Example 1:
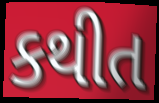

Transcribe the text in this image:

કથીત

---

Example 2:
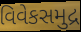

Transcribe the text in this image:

વિવેકસમુદ્ર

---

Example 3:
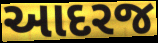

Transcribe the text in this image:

આદરજ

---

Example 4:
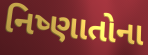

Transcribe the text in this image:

નિષ્ણાતોના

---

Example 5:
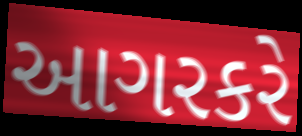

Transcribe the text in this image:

આગરકરે